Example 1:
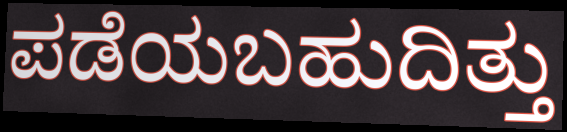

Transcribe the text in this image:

ಪಡೆಯಬಹುದಿತ್ತು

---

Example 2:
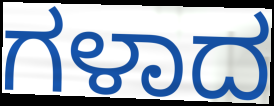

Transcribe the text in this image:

ಗಳಾದ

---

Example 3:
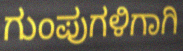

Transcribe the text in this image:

ಗುಂಪುಗಳಿಗಾಗಿ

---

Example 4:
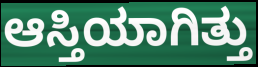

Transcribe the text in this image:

ಆಸ್ತಿಯಾಗಿತ್ತು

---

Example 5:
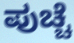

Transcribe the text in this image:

ಪುಚ್ಚೆ